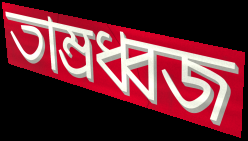
তাম্রধ্বজ